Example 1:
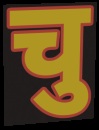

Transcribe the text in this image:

चु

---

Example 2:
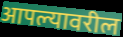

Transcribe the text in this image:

आपल्यावरील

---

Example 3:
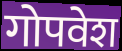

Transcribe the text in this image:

गोपवेश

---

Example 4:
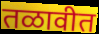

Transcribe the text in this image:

तळावीत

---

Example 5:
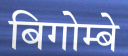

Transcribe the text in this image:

बिगोम्बे